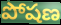
పోషణ